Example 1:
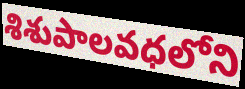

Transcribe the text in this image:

శిశుపాలవధలోని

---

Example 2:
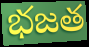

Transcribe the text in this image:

భజత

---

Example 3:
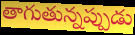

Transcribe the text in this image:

తాగుతున్నప్పుడు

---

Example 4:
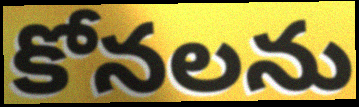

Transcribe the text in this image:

కోనలను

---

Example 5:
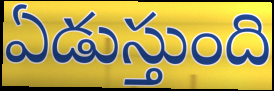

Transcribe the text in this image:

ఏడుస్తుంది